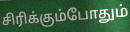
சிரிக்கும்போதும்